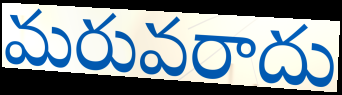
మరువరాదు